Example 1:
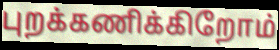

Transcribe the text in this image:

புறக்கணிக்கிறோம்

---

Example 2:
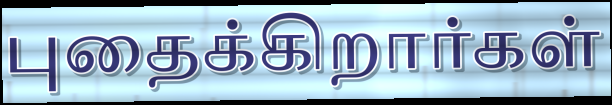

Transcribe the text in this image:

புதைக்கிறார்கள்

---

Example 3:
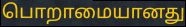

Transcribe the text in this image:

பொறாமையானது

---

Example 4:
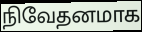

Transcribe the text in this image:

நிவேதனமாக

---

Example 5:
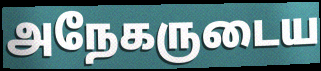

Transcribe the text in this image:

அநேகருடைய